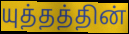
யுத்தத்தின்